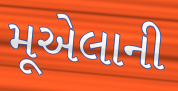
મૂએલાની